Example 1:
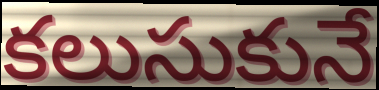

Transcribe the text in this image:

కలుసుకునే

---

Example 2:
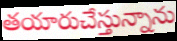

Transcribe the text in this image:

తయారుచేస్తున్నాను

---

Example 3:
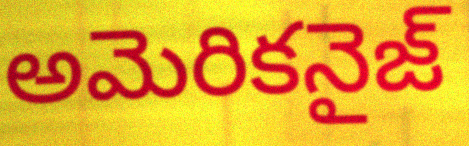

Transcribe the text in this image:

అమెరికనైజ్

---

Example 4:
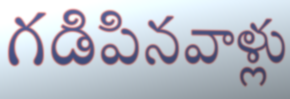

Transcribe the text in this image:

గడిపినవాళ్లు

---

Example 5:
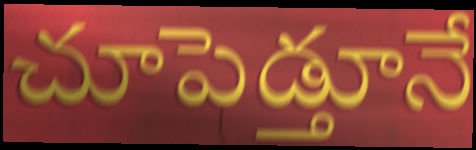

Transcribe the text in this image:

చూపెడ్తూనే